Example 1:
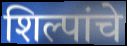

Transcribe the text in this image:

शिल्पांचे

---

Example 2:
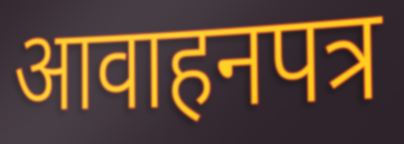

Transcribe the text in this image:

आवाहनपत्र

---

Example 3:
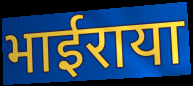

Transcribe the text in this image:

भाईराया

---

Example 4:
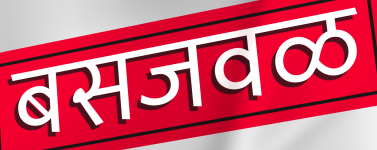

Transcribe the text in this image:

बसजवळ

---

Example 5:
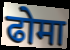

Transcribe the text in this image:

ढोमा